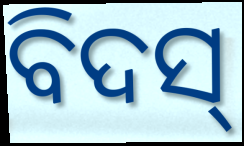
ବିଦସ୍